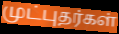
முட்புதர்கள்